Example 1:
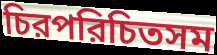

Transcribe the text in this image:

চিরপরিচিতসম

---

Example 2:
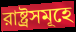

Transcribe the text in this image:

রাষ্ট্রসমূহে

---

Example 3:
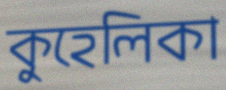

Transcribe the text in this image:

কুহেলিকা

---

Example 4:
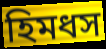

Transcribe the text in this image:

হিমধস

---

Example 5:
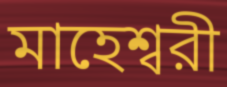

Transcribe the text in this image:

মাহেশ্বরী